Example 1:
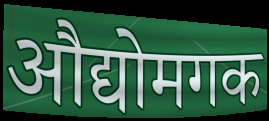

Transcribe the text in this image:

औद्योमगक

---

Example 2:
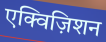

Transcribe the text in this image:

एक्विज़िशन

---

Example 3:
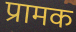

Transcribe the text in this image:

प्रामक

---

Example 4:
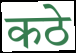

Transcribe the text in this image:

कठे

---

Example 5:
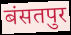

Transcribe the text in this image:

बंसतपुर